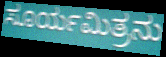
ಸೂರ್ಯಮಿತ್ರನು